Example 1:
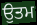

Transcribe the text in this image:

ਉਤਮ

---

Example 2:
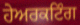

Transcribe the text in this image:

ਹੇਅਰਕਟਿੰਗ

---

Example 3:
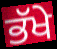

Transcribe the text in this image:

ਭੱਖੇ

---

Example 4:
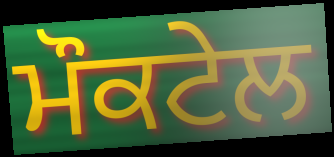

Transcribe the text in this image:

ਮੌਕਟੇਲ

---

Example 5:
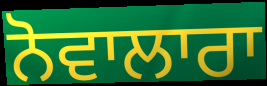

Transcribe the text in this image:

ਨੋਵਾਲਾਰਾ